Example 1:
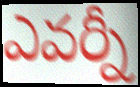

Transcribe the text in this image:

ఎవర్నీ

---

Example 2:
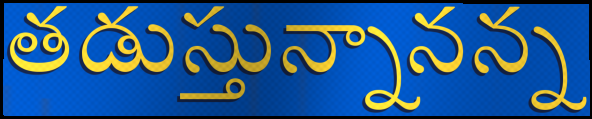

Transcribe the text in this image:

తడుస్తున్నానన్న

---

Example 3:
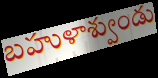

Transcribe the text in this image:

బహుళాశ్వుండు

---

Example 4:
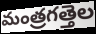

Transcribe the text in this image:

మంత్రగత్తెల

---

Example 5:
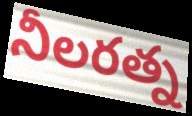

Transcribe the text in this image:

నీలరత్న